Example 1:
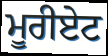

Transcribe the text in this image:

ਮੂਰੀਏਟ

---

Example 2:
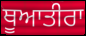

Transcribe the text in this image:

ਥੂਆਤੀਰਾ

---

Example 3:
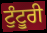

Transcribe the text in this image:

ਟੁੰਟੂਰੀ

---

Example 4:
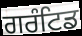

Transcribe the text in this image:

ਗਰੰਟਿਡ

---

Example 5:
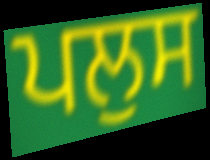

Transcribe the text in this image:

ਪਲੁਸ